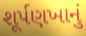
શૂર્પણખાનું